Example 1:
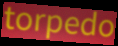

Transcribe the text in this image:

torpedo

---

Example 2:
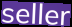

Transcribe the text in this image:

seller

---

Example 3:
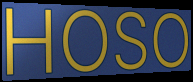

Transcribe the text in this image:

HOSO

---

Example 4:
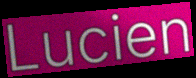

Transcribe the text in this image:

Lucien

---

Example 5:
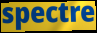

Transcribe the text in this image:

spectre